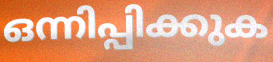
ഒന്നിപ്പിക്കുക